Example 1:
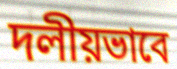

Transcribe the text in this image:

দলীয়ভাবে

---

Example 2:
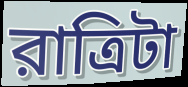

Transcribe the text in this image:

রাত্রিটা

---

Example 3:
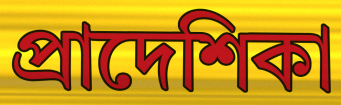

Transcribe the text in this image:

প্রাদেশিকা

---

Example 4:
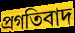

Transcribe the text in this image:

প্রগতিবাদ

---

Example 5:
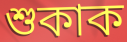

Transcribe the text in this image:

শুকাক